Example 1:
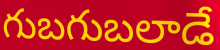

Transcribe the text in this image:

గుబగుబలాడే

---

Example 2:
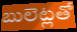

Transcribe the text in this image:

బులెట్లతో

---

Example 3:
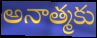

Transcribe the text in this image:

అనాత్మకు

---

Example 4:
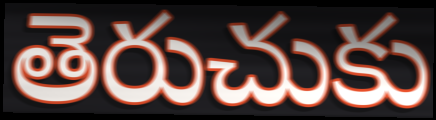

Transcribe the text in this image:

తెరుచుకు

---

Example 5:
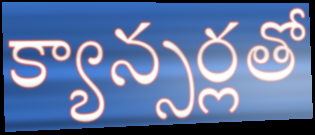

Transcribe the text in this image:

క్యాన్సర్లతో